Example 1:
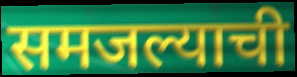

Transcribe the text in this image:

समजल्याची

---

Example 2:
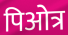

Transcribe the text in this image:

पिओत्र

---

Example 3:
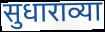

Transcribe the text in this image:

सुधाराव्या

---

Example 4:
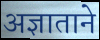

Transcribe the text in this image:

अज्ञाताने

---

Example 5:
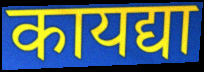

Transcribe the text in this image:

कायद्या